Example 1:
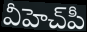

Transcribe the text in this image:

వీహెచ్‌పీ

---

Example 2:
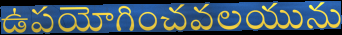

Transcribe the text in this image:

ఉపయోగించవలయును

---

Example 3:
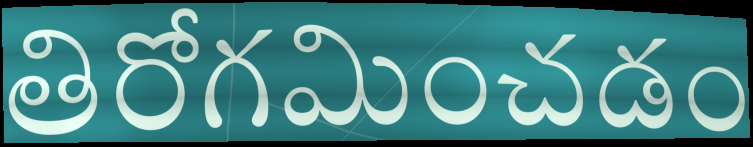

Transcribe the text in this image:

తిరోగమించడం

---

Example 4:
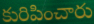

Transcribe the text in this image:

కురిపించారు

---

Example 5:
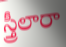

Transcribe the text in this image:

స్త్రీలారా